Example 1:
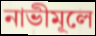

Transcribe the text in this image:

নাভীমূলে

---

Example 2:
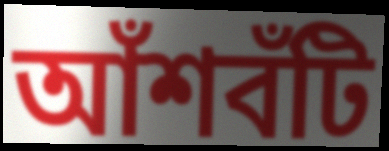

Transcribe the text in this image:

আঁশবঁটি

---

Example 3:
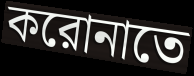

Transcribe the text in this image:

করোনাতে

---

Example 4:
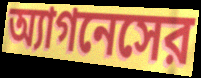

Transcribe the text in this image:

অ্যাগনেসের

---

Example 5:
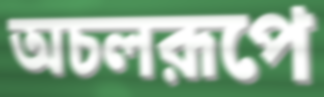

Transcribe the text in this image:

অচলরূপে